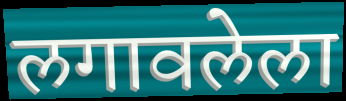
लगावलेला